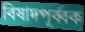
বিষাদপূর্ব্বক